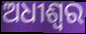
ଅଧୀଶ୍ୱର